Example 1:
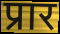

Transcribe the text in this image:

प्रार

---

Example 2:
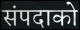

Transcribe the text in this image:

संपदाको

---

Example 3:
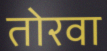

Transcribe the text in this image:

तोरवा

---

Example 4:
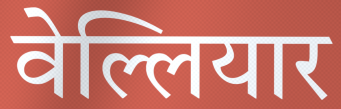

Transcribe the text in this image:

वेल्लियार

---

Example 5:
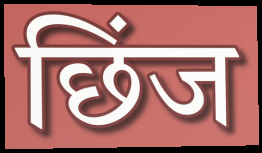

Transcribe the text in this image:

छिंज